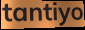
tantiyo